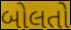
બોલતો